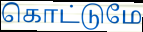
கொட்டுமே